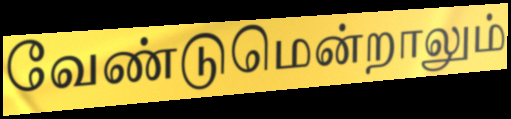
வேண்டுமென்றாலும்